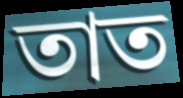
তাত